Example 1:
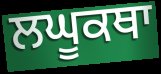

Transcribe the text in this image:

ਲਘੂਕਥਾ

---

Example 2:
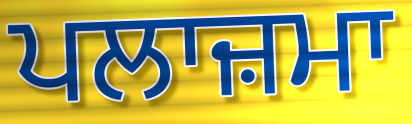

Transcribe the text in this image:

ਪਲਾਜ਼ਮਾ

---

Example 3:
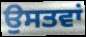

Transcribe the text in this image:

ਉਸਤਵਾਂ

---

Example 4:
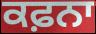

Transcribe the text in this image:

ਕਫ਼ਨਾ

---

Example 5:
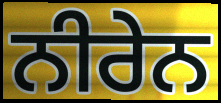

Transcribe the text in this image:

ਨੀਰੇਨ